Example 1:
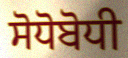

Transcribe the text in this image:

ਸੋਧੋਬੋਧੀ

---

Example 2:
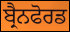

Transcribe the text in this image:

ਬ੍ਰੈਨਫੋਰਡ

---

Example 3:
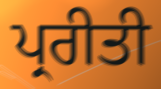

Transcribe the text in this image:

ਪ੍ਰਰੀਤੀ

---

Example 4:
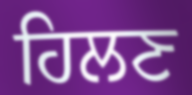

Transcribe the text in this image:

ਹਿਲਣ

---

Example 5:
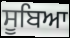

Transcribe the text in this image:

ਸੂਬਿਆ